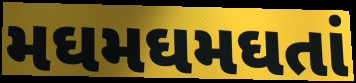
મઘમઘમઘતાં